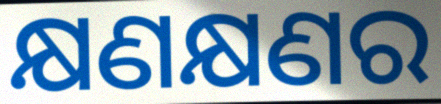
କ୍ଷଣକ୍ଷଣର